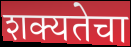
शक्यतेचा